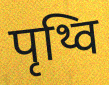
पृथ्वि